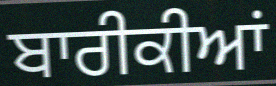
ਬਾਰੀਕੀਆਂ